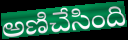
అణిచేసింది